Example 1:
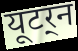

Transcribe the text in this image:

यूटर्न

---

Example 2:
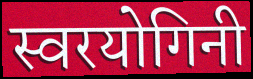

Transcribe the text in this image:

स्वरयोगिनी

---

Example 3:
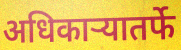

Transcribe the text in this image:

अधिकाऱ्यातर्फे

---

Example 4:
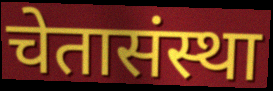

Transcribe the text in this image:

चेतासंस्था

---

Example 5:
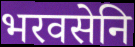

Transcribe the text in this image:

भरवसेनि